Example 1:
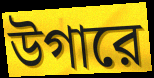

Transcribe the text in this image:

উগারে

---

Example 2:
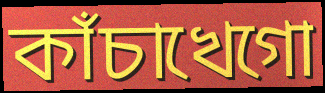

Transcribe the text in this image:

কাঁচাখেগো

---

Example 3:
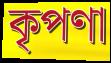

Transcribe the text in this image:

কৃপণা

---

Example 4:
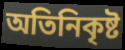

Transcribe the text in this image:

অতিনিকৃষ্ট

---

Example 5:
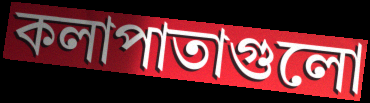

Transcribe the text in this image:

কলাপাতাগুলো